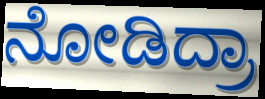
ನೋಡಿದ್ರಾ